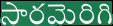
సారమెరిగి